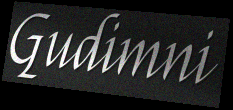
Gudimni